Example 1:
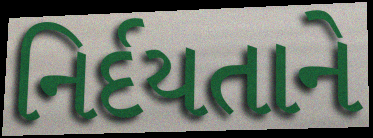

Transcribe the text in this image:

નિર્દયતાને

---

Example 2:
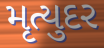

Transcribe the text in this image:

મૃત્યુદર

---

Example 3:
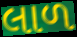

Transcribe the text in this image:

લાળ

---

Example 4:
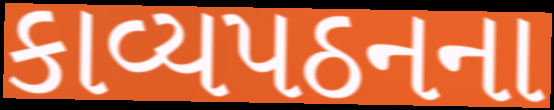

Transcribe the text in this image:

કાવ્યપઠનના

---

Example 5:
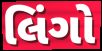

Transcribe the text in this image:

લિંગો